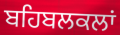
ਬਹਿਬਲਕਲਾਂ